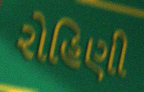
રોહિણી